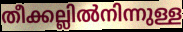
തീക്കല്ലിൽനിന്നുള്ള